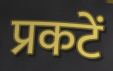
प्रकटें